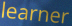
learner